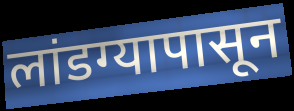
लांडग्यापासून